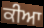
ਕੀਆ